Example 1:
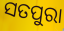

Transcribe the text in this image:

ସତପୁରା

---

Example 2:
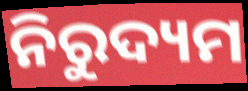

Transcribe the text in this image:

ନିରୁଦ୍ୟମ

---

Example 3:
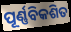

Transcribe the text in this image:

ପୂର୍ଣ୍ଣବିକଶିତ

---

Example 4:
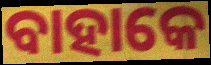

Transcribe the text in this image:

ବାହାକେ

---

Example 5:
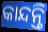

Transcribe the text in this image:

କାନ୍ଦନ୍ତି